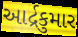
આર્દ્રકુમાર